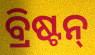
ବ୍ରିଷ୍ଟନ୍